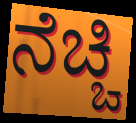
ನೆಚ್ಚಿ